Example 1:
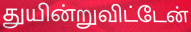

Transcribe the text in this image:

துயின்றுவிட்டேன்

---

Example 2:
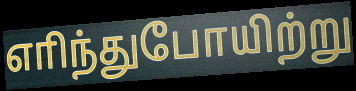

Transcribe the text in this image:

எரிந்துபோயிற்று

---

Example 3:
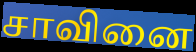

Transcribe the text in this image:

சாவினை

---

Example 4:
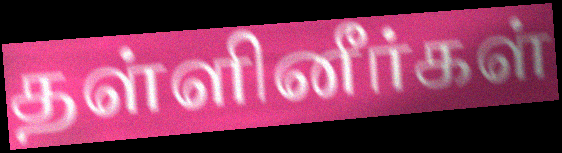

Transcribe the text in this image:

தள்ளினீர்கள்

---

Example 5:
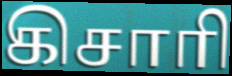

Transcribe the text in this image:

கிசாரி